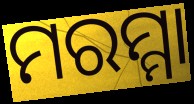
ମରମ୍ମା